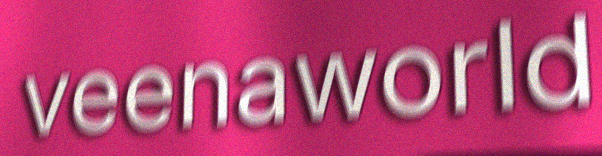
veenaworld